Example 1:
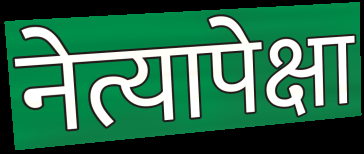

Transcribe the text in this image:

नेत्यापेक्षा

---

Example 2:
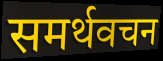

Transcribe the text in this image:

समर्थवचन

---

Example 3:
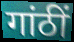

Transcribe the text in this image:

गांठीं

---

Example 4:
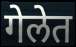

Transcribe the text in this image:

गेलेत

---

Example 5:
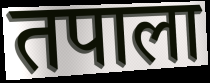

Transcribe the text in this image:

तपाला